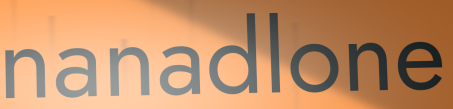
nanadlone